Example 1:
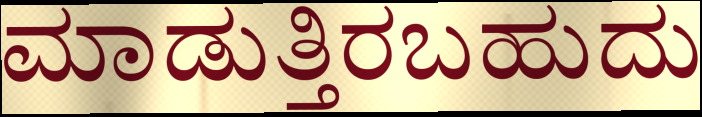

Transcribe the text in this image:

ಮಾಡುತ್ತಿರಬಹುದು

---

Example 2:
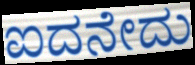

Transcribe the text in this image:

ಐದನೇದು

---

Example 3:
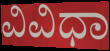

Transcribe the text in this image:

ವಿವಿಧಾ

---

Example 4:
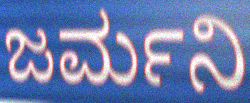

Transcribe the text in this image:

ಜರ್ಮನಿ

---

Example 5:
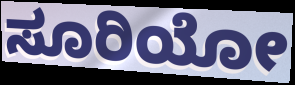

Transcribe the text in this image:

ಸೂರಿಯೋ